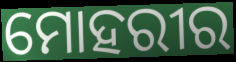
ମୋହରୀର